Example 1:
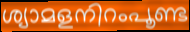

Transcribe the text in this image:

ശ്യാമളനിറംപൂണ്ട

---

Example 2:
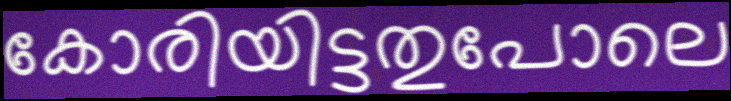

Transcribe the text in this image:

കോരിയിട്ടതുപോലെ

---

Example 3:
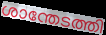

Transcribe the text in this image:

ശാന്തേടത്തി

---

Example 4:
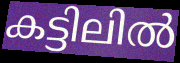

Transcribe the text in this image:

കട്ടിലിൽ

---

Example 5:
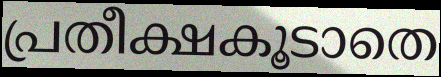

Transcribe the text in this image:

പ്രതീക്ഷകൂടാതെ